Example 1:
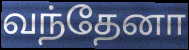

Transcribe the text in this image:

வந்தேனா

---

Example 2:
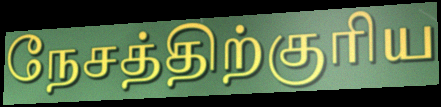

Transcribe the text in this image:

நேசத்திற்குரிய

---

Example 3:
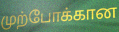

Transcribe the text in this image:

முற்போக்கான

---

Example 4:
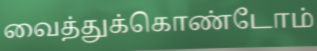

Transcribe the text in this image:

வைத்துக்கொண்டோம்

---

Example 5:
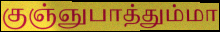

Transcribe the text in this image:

குஞ்ஞுபாத்தும்மா